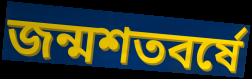
জন্মশতবর্ষে